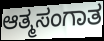
ಆತ್ಮಸಂಗಾತ